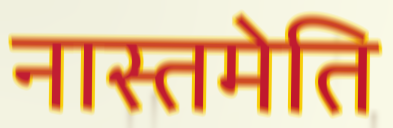
नास्तमेति